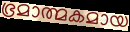
ഭ്രമാത്മകമായ